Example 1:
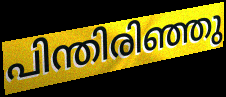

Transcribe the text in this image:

പിന്തിരിഞ്ഞു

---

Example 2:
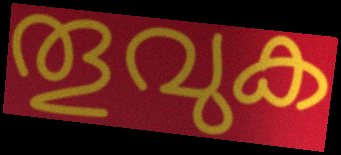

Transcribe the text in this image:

തൂവുക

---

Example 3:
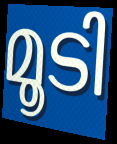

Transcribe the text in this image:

മൂടി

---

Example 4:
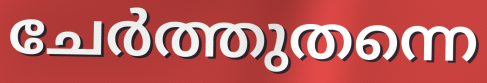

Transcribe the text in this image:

ചേർത്തുതന്നെ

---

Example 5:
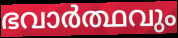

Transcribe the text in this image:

ഭവാർത്ഥവും